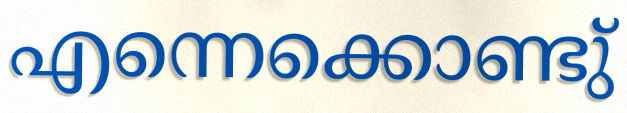
എന്നെക്കൊണ്ടു്